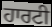
ਹਾਰਟੀ